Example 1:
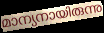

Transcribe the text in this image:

മാന്യനായിരുന്നു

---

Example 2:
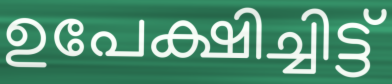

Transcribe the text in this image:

ഉപേക്ഷിച്ചിട്ട്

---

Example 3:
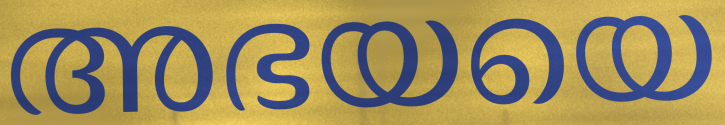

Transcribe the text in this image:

അഭയയെ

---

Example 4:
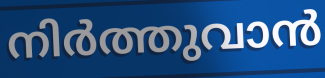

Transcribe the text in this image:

നിർത്തുവാൻ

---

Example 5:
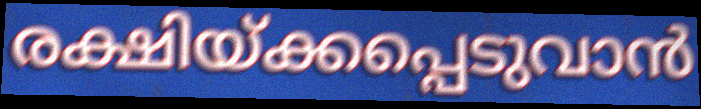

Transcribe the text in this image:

രക്ഷിയ്ക്കപ്പെടുവാൻ